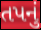
તપનું